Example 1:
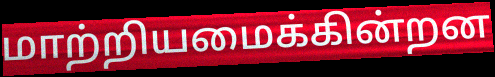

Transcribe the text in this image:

மாற்றியமைக்கின்றன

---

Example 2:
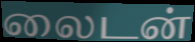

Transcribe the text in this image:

லைடன்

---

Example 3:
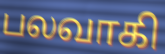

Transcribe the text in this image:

பலவாகி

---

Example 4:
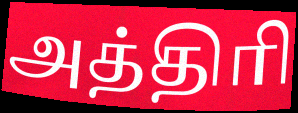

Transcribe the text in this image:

அத்திரி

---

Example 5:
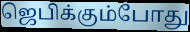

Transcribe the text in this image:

ஜெபிக்கும்போது